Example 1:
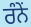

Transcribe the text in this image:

ਰੰਨੇਂ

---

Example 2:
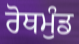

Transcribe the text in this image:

ਰੋਥਮੁੰਡ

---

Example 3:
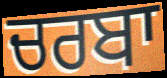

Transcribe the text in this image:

ਚਰਬਾ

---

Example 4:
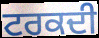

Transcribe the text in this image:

ਟਰਕਦੀ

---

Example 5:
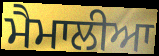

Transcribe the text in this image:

ਮੈਮਾਲੀਆ